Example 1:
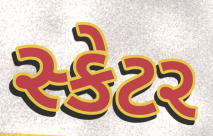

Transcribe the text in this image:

સ્કેટર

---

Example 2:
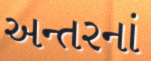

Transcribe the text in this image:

અન્તરનાં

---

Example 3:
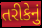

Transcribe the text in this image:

તરીકેનું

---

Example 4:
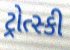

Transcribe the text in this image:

ટ્રોત્સ્કી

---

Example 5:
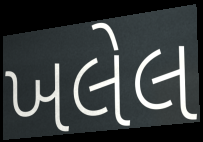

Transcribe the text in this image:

ખલેલ